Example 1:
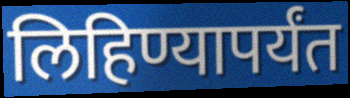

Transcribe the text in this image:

लिहिण्यापर्यंत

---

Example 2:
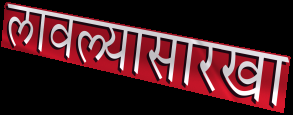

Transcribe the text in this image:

लावल्यासारखा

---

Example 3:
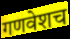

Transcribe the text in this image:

गणवेशच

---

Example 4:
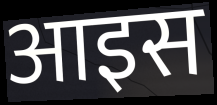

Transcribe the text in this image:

आइस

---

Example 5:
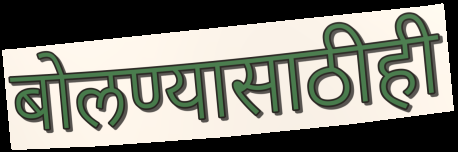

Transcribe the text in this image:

बोलण्यासाठीही